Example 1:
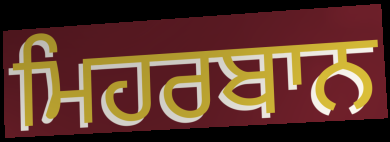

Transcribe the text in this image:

ਮਿਹਰਬਾਨ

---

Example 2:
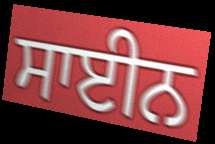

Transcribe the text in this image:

ਸਾਈਨ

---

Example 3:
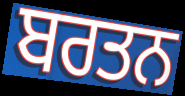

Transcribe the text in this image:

ਬਰਤਨ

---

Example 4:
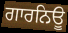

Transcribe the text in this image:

ਗਾਰਨਿਊ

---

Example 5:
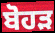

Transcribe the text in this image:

ਬੋਹੜ